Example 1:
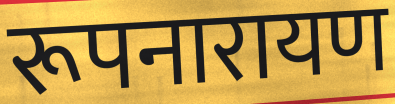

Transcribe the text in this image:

रूपनारायण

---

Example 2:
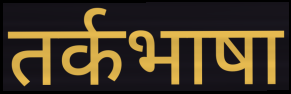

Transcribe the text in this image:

तर्कभाषा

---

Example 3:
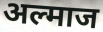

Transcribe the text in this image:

अल्माज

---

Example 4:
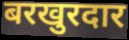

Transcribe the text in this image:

बरखुरदार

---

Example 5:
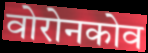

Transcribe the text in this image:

वोरोनकोव